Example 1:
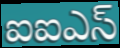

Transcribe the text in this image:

ఐఐఎస్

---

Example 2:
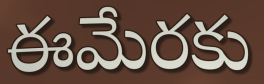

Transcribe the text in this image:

ఈమేరకు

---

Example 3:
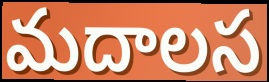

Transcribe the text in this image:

మదాలస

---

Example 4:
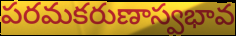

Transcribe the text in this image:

పరమకరుణాస్వభావ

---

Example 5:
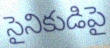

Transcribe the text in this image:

సైనికుడిపై